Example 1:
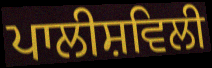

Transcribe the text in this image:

ਪਾਲੀਸ਼ਵਿਲੀ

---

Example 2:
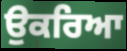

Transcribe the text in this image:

ਉਕਰਿਆ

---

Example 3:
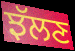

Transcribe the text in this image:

ਝੱਲਣ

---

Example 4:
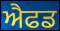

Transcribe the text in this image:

ਐਫਡ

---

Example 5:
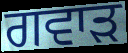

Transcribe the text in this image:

ਗਵਾੜ